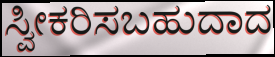
ಸ್ವೀಕರಿಸಬಹುದಾದ